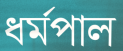
ধৰ্মপাল